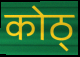
कोठ्